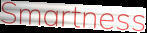
Smartness